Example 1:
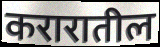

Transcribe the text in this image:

करारातील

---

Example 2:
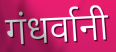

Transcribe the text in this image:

गंधर्वानी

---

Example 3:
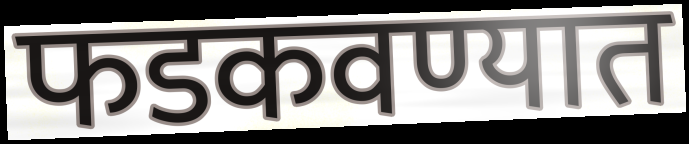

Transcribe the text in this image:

फडकवण्यात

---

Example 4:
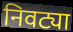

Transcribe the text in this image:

निवट्या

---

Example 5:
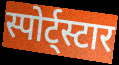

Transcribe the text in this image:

स्पोर्ट्स्टार